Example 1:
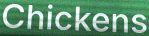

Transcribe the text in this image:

Chickens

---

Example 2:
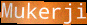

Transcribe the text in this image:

Mukerji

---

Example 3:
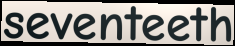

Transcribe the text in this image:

seventeeth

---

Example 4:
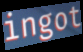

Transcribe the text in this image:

ingot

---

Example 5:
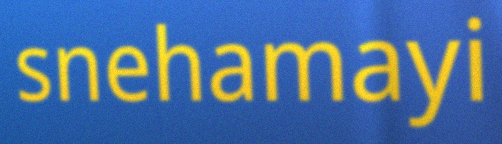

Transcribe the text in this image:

snehamayi